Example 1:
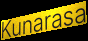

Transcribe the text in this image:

Kunarasa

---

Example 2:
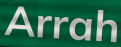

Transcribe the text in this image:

Arrah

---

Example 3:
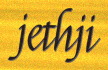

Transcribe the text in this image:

jethji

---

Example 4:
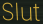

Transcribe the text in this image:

Slut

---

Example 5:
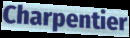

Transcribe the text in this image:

Charpentier